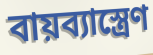
বায়ব্যাস্ত্রেণ